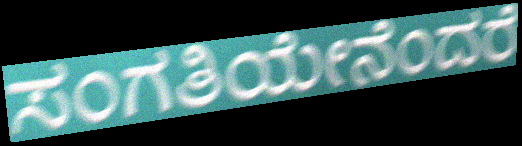
ಸಂಗತಿಯೇನೆಂದರೆ